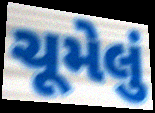
ચૂમેલું